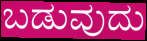
ಬಡುವುದು